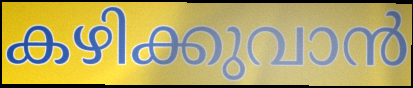
കഴിക്കുവാൻ